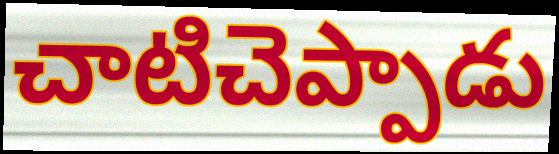
చాటిచెప్పాడు